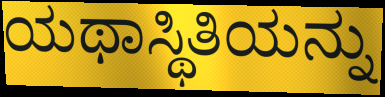
ಯಥಾಸ್ಥಿತಿಯನ್ನು